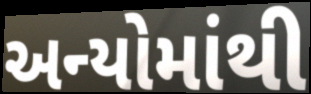
અન્યોમાંથી